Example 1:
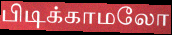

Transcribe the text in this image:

பிடிக்காமலோ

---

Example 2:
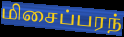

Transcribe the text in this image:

மிசைப்பரந்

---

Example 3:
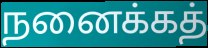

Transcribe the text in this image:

நனைக்கத்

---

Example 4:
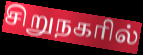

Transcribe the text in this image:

சிறுநகரில்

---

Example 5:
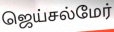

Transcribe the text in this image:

ஜெய்சல்மேர்